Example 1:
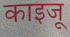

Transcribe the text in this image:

काइजू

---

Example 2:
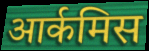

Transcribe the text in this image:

आर्कमिस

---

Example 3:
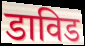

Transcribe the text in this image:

डाविड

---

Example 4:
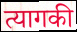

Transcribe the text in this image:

त्यागकी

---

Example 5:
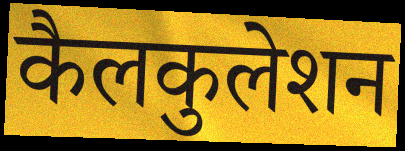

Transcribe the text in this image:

कैलकुलेशन